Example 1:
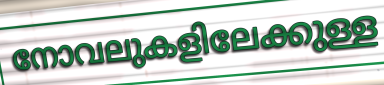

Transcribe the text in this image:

നോവലുകളിലേക്കുള്ള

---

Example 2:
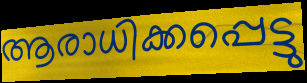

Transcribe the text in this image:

ആരാധിക്കപ്പെട്ടു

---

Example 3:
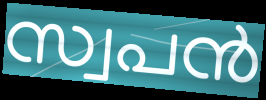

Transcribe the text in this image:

സ്വപൻ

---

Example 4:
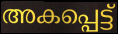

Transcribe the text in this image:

അകപ്പെട്ട്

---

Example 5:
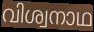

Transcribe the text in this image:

വിശ്വനാഥ